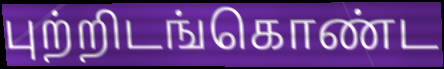
புற்றிடங்கொண்ட